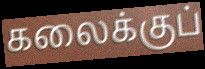
கலைக்குப்